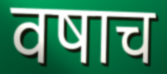
वषाच